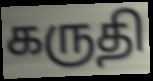
கருதி